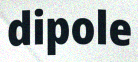
dipole